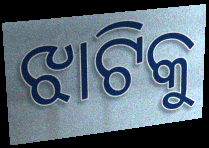
ଝାଟିକୁ